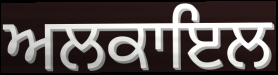
ਅਲਕਾਇਲ